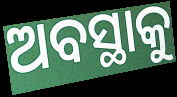
ଅବସ୍ଥାକୁ